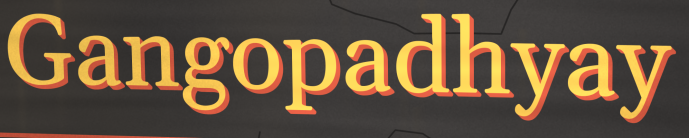
Gangopadhyay